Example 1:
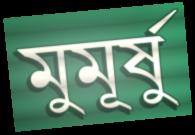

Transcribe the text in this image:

মুমূর্ষু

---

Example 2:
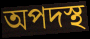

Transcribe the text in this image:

অপদস্থ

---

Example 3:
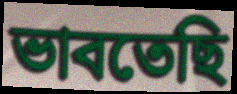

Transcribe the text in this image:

ভাবতেছি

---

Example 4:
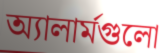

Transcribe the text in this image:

অ্যালার্মগুলো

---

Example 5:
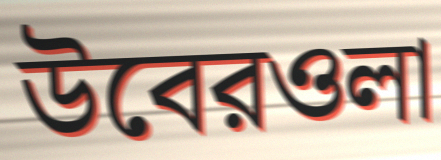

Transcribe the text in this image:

উবেরওলা